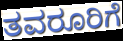
ತವರೂರಿಗೆ